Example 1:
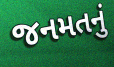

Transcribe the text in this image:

જનમતનું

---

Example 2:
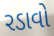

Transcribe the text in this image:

રડાવો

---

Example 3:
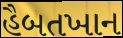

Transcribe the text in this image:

હૈબતખાન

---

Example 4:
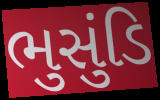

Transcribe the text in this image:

ભુસુંડિ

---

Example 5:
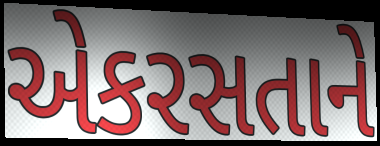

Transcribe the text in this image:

એકરસતાને